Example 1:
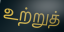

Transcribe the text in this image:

உற்றுத்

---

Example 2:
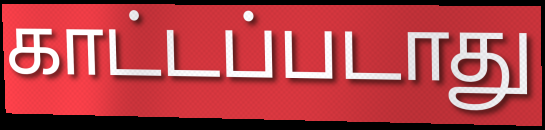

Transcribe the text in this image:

காட்டப்படாது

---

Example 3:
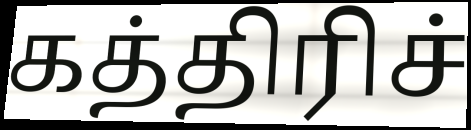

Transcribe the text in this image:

கத்திரிச்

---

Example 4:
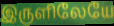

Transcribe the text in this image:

இருளிலேயே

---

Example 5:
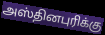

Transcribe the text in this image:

அஸ்தினபுரிக்கு